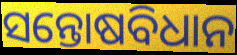
ସନ୍ତୋଷବିଧାନ